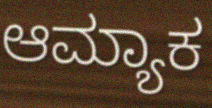
ಆಮ್ಯಾಕ